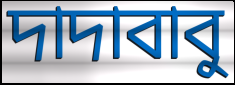
দাদাবাবু